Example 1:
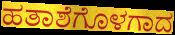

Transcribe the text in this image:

ಹತಾಶೆಗೊಳಗಾದ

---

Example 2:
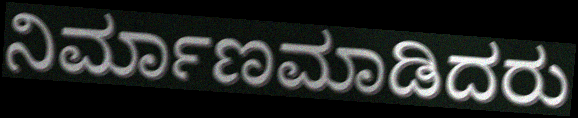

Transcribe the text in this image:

ನಿರ್ಮಾಣಮಾಡಿದರು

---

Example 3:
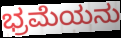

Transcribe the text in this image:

ಭ್ರಮೆಯನು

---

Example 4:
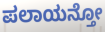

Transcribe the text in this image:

ಪಲಾಯನ್ತೋ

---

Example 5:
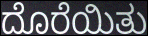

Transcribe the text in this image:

ದೊರೆಯಿತು